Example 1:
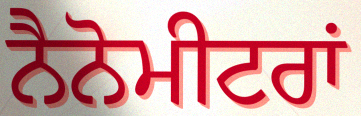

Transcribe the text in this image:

ਨੈਨੋਮੀਟਰਾਂ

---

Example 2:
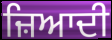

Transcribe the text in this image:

ਜ਼ਿਆਦੀ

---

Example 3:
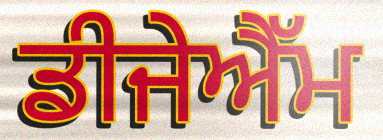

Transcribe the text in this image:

ਡੀਜੇਐੱਮ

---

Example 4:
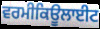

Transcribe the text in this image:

ਵਰਮੀਕਿਊਲਾਈਟ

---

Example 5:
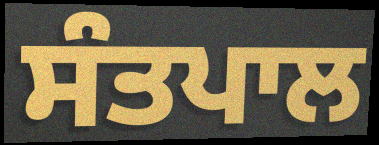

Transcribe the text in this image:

ਸੰਤਪਾਲ